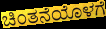
ಚಿಂತನೆಯೊಳಗೆ